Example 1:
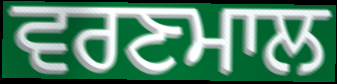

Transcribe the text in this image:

ਵਰਣਮਾਲ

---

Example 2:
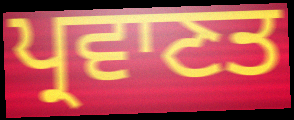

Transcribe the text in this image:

ਪ੍ਰਵਾਣਤ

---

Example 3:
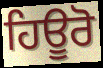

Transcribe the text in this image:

ਹਿਊਰੋ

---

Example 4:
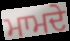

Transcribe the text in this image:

ਮਾਮਦੇ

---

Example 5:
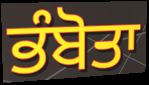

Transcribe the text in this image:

ਭੰਬੋਤਾ